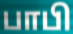
பாபி